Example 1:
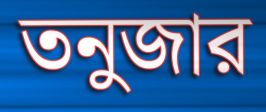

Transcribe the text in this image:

তনুজার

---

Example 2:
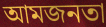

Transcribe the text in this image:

আমজনতা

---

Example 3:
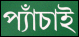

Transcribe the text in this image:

প্যাঁচাই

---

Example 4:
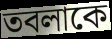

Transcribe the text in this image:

তবলাকে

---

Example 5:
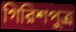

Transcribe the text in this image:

গিরিশপুত্র